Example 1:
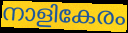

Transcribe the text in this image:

നാളികേരം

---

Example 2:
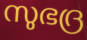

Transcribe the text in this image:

സുഭദ്ര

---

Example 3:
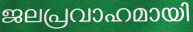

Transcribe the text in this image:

ജലപ്രവാഹമായി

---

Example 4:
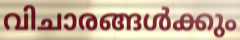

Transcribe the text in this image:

വിചാരങ്ങൾക്കും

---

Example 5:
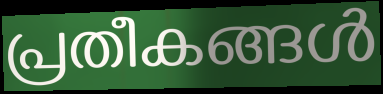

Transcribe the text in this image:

പ്രതീകങ്ങൾ